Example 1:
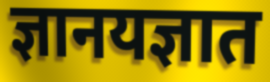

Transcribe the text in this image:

ज्ञानयज्ञात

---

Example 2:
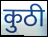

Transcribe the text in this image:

कुठी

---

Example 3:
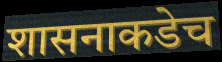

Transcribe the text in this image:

शासनाकडेच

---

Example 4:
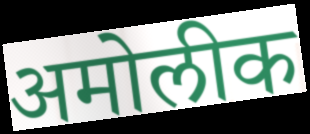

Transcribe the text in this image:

अमोलीक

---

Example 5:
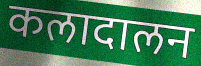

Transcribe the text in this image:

कलादालन